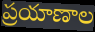
ప్రయాణాల